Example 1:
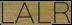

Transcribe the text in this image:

LALR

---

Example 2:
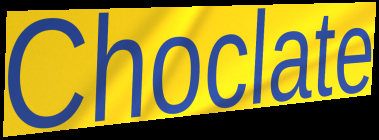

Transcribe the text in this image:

Choclate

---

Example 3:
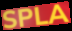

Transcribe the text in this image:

SPLA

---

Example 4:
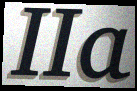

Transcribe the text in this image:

IIa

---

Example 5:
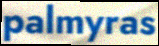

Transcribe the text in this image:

palmyras